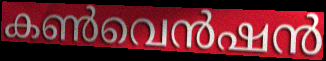
കൺവെൻഷൻ